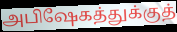
அபிஷேகத்துக்குத்